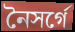
নৈসর্গে